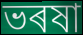
ভৰষা